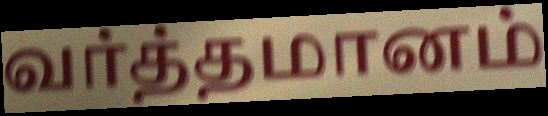
வர்த்தமானம்